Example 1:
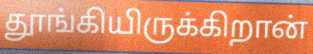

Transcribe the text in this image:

தூங்கியிருக்கிறான்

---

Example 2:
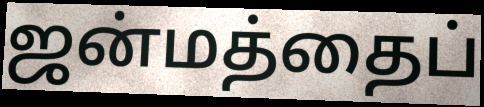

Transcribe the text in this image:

ஜன்மத்தைப்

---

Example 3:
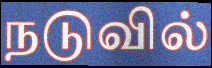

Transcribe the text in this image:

நடுவில்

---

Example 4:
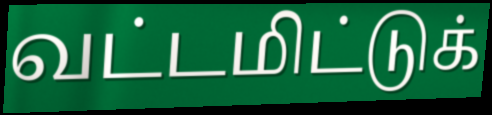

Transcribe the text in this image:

வட்டமிட்டுக்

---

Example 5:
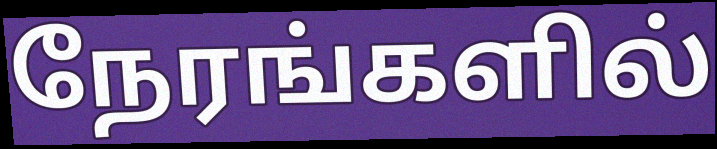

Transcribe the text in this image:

நேரங்களில்